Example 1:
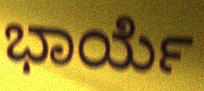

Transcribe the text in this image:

ಭಾರ್ಯೆ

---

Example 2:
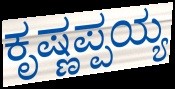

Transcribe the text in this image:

ಕೃಷ್ಣಪ್ಪಯ್ಯ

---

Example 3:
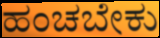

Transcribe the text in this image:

ಹಂಚಬೇಕು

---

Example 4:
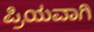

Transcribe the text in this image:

ಪ್ರಿಯವಾಗಿ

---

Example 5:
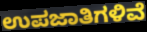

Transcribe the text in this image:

ಉಪಜಾತಿಗಳಿವೆ